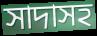
সাদাসহ